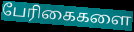
பேரிகைகளை